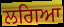
ਲਗਿਆ